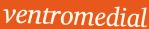
ventromedial